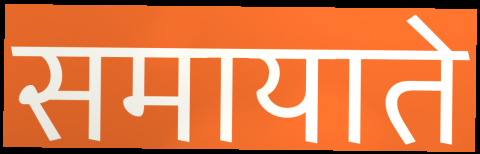
समायाते